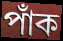
পাঁক